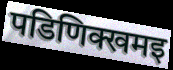
पडिणिक्खमइ